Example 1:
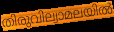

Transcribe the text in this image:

തിരുവില്വാമലയിൽ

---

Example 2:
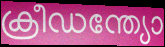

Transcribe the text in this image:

ക്രീഡന്ത്യോ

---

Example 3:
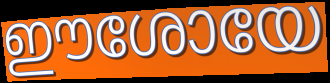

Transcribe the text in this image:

ഈശോയേ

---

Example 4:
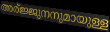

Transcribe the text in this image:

അര്ജ്ജുനനുമായുള്ള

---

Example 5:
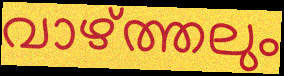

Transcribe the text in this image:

വാഴ്ത്തലും